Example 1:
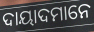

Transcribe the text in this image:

ଦାୟାଦମାନେ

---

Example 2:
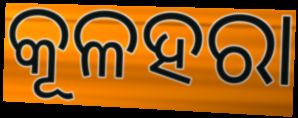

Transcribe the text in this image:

କୂଳହରା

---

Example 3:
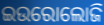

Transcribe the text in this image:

ଇଉରୋଲୋଜି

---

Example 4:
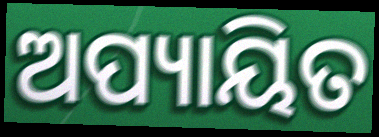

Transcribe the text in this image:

ଅପ୍ୟାୟିତ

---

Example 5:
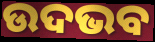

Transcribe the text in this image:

ଉଦଭବ